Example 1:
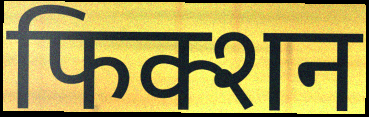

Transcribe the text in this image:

फिक्शन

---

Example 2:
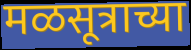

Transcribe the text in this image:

मळसूत्राच्या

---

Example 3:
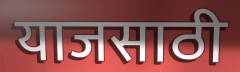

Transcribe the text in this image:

याजसाठी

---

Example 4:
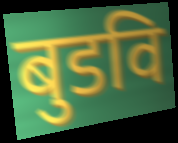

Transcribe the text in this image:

बुडवि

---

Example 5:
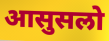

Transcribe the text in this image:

आसुसलो